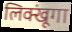
लिक्खूंगा